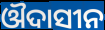
ଔଦାସୀନ